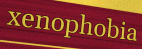
xenophobia